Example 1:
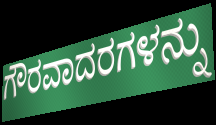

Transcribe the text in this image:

ಗೌರವಾದರಗಳನ್ನು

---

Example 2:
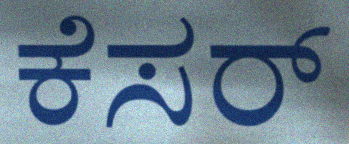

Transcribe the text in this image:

ಕೆಸರ್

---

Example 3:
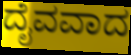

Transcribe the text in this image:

ದೈವವಾದ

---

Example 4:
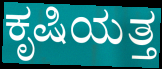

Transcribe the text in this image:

ಕೃಷಿಯತ್ತ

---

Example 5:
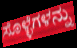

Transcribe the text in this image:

ಸೊಳ್ಳೆಗಳನ್ನು